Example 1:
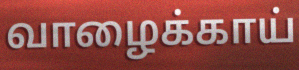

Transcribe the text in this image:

வாழைக்காய்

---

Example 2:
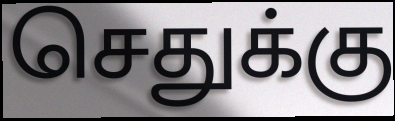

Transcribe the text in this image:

செதுக்கு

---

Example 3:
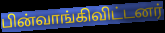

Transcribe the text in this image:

பின்வாங்கிவிட்டனர்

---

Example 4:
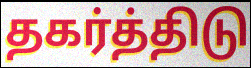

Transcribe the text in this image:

தகர்த்திடு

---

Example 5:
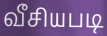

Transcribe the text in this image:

வீசியபடி